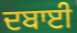
ਦਬਾਈ